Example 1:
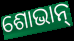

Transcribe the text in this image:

ଶୋଭାନ୍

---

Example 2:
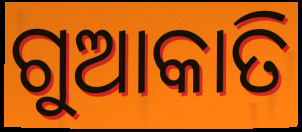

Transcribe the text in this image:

ଗୁଆକାତି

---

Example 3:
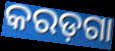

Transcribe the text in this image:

କରଡ଼ଗା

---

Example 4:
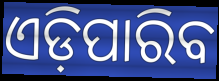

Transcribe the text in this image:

ଏଡ଼ିପାରିବ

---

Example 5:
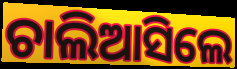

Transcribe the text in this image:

ଚାଲିଆସିଲେ